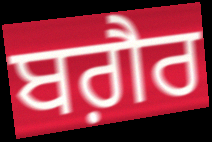
ਬਗ਼ੈਰ